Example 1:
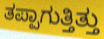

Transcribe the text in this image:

ತಪ್ಪಾಗುತ್ತಿತ್ತು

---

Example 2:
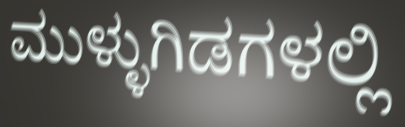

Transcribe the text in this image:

ಮುಳ್ಳುಗಿಡಗಳಲ್ಲಿ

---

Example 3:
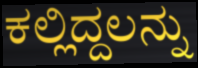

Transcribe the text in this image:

ಕಲ್ಲಿದ್ದಲನ್ನು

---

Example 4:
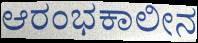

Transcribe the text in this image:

ಆರಂಭಕಾಲೀನ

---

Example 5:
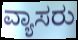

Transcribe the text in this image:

ವ್ಯಾಸರು